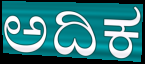
ಅದಿಕ